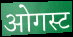
ओगस्ट